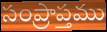
సంప్రాప్తము